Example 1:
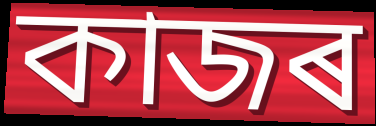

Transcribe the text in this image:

কাজৰ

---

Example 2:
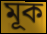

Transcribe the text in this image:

মূক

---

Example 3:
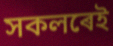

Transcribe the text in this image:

সকলৰেই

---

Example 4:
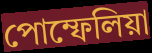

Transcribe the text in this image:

পোম্ফেলিয়া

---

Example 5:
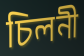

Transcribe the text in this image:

চিলনী